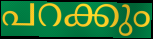
പറക്കും